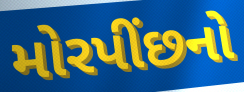
મોરપીંછનો